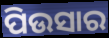
ପିଉସାର